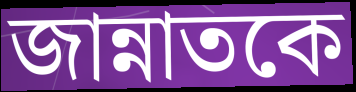
জান্নাতকে